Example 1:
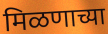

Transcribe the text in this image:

मिळणाच्या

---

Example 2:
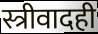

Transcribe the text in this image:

स्त्रीवादही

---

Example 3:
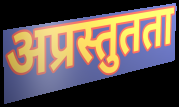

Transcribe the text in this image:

अप्रस्तुतता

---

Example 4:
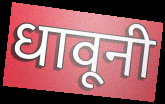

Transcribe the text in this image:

धावूनी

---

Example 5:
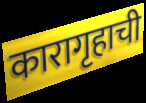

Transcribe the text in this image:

कारागृहाची